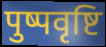
पुष्पवृष्टि